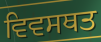
ਵਿਵਸਥਤ